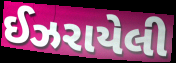
ઈઝરાયેલી